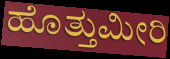
ಹೊತ್ತುಮೀರಿ